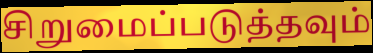
சிறுமைப்படுத்தவும்